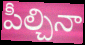
పీల్చినా